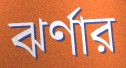
ঝর্ণার